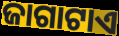
ଜାଗାଟାଏ